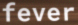
fever